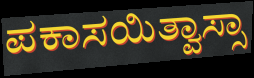
ಪಕಾಸಯಿತ್ವಾಸ್ಸಾ